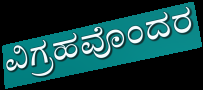
ವಿಗ್ರಹವೊಂದರ